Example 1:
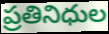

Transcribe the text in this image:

ప్రతినిధుల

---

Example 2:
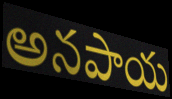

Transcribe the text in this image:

అనపాయ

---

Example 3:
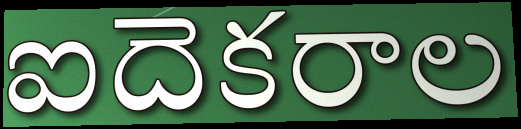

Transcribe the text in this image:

ఐదెకరాల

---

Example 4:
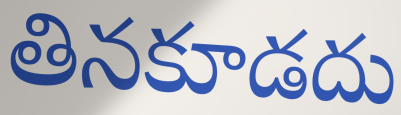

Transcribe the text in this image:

తినకూడదు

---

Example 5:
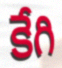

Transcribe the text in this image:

కేగి